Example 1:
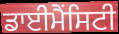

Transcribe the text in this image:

ਡਾਈਮੈਂਸਿਟੀ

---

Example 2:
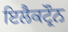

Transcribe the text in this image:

ਇਲੈਕਟ੍ਰੌਨ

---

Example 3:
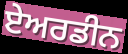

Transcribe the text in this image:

ਏਅਰਡੀਨ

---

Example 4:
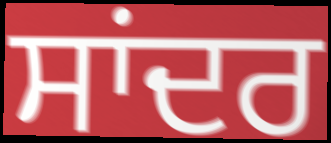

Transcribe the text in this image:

ਸਾਂਦਰ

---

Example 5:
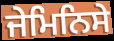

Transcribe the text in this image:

ਜੇਮਿਨਿਸੇ